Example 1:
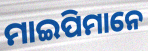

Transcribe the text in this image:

ମାଇପିମାନେ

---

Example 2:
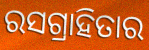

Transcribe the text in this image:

ରସଗ୍ରାହିତାର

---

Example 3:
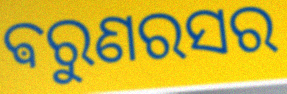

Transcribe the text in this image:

ଵରୁଣରସର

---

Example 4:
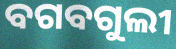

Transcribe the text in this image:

ବଗବଗୁଲୀ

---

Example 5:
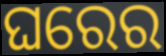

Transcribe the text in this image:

ଘରେର